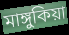
মাঙ্গুকিয়া